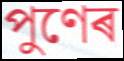
পুণেৰ